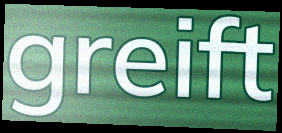
greift